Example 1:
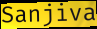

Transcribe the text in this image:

Sanjiva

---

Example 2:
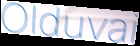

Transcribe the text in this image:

Olduvai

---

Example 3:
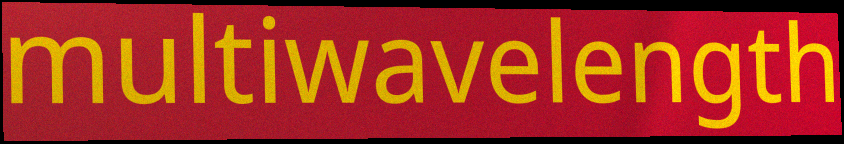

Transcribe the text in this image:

multiwavelength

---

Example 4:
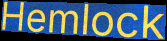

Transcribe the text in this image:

Hemlock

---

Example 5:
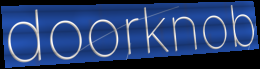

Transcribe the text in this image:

doorknob